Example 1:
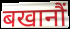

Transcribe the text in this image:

बखानौं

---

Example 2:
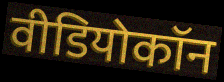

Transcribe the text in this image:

वीडियोकॉन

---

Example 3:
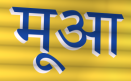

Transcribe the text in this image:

मूआ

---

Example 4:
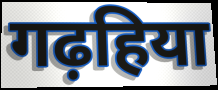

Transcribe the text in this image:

गढ़हिया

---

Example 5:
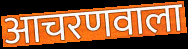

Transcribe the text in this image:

आचरणवाला